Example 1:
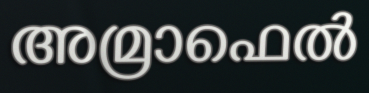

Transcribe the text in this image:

അമ്രാഫെൽ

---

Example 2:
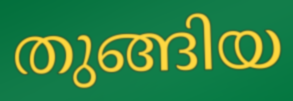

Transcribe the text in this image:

തുങ്ങിയ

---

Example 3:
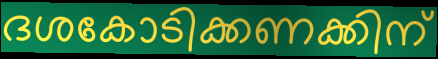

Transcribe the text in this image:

ദശകോടിക്കണക്കിന്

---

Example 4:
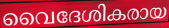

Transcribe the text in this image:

വൈദേശികരായ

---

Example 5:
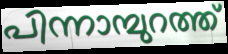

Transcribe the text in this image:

പിന്നാമ്പുറത്ത്